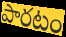
పారటం